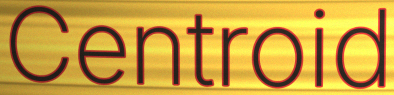
Centroid